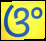
ଓଂ